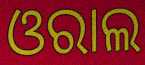
ଓରାଲ